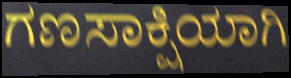
ಗಣಸಾಕ್ಷಿಯಾಗಿ